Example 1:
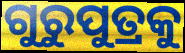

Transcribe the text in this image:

ଗୁରୁପୁତ୍ରକୁ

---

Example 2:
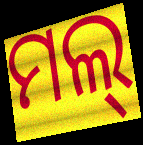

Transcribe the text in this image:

ମଲ୍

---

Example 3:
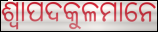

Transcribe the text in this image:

ଶ୍ୱାପଦକୁଳମାନେ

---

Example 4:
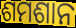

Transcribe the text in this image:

ଶମଶାନ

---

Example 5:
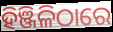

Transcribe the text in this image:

ହିଞ୍ଜିଳିଠାରେ